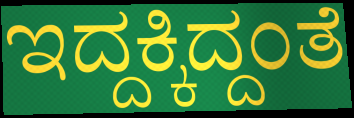
ಇದ್ದಕ್ಕಿದ್ದಂತೆ